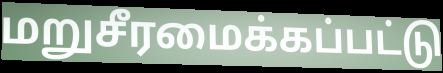
மறுசீரமைக்கப்பட்டு